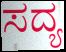
ಸದ್ಯ